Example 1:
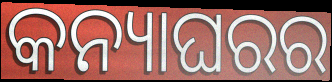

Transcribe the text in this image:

କନ୍ୟାଘରର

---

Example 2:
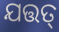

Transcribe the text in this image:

ଯତ୍ତତ୍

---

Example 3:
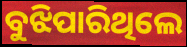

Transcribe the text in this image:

ବୁଝିପାରିଥିଲେ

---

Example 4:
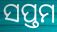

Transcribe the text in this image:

ସପ୍ତମ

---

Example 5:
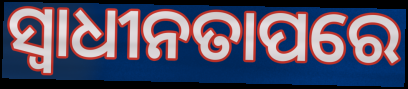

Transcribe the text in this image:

ସ୍ୱାଧୀନତାପରେ